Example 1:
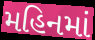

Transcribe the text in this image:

મહિનમાં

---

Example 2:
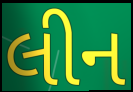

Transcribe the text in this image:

લીન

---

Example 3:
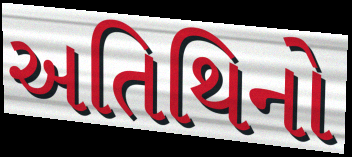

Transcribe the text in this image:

અતિથિનો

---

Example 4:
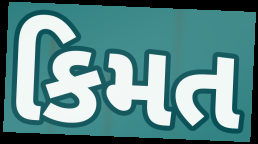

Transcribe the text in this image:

કિમત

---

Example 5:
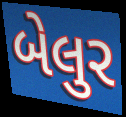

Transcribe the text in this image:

બેલુર